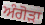
ਅੰਗੋੜਾ